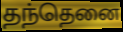
தந்தெனை